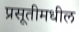
प्रसूतीमधील